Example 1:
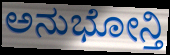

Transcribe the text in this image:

ಅನುಭೋನ್ತಿ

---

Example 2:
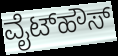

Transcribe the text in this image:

ವೈಟ್‌ಹೌಸ್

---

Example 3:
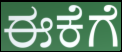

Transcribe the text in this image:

ಈಕೆಗೆ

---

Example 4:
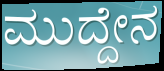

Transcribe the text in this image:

ಮುದ್ದೇನ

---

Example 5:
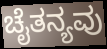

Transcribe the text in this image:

ಚೈತನ್ಯವು